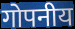
गोपनीय